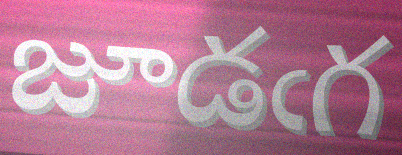
జూడఁగ